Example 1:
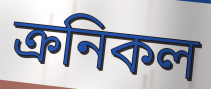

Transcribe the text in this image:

ক্রনিকল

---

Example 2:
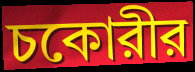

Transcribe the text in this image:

চকোরীর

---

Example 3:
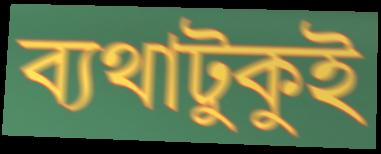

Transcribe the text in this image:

ব্যথাটুকুই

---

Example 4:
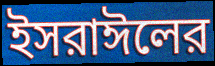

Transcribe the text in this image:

ইসরাঈলের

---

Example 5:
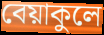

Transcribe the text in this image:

বেয়াকুলে